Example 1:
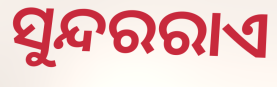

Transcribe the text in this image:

ସୁନ୍ଦରରାଏ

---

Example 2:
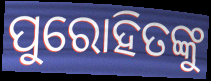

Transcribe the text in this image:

ପୁରୋହିତଙ୍କୁ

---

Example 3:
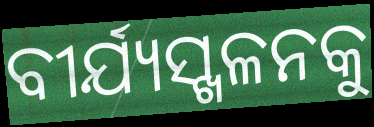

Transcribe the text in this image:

ବୀର୍ଯ୍ୟସ୍ଖଳନକୁ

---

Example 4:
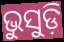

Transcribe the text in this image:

ଭୁସୁଡ଼ି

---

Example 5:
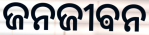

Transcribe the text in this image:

ଜନଜୀଵନ